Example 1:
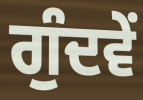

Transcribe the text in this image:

ਗੁੰਦਵੇਂ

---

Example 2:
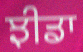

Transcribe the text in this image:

ਝੀਡਾ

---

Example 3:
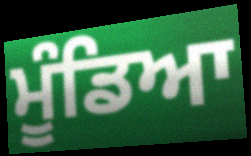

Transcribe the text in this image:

ਮੂੰਡਿਆ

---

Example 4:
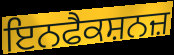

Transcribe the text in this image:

ਇਨਫੈਕਸ਼ਨਜ਼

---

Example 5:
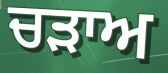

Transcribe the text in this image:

ਚੜਾਅ